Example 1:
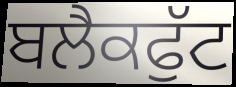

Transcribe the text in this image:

ਬਲੈਕਫੁੱਟ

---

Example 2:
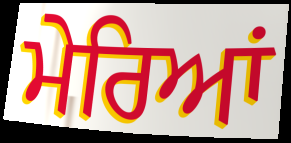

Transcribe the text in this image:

ਮੇਰਿਆਂ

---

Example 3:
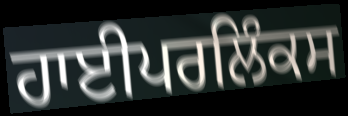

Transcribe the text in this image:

ਹਾਈਪਰਲਿੰਕਸ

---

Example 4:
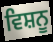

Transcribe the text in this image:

ਵਿਸ਼ਨੂ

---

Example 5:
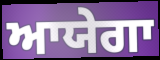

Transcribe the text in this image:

ਆਯੇਗਾ